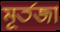
মূর্তজা